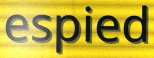
espied